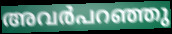
അവർപറഞ്ഞു